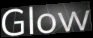
Glow